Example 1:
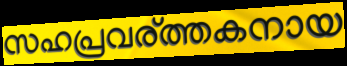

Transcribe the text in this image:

സഹപ്രവര്ത്തകനായ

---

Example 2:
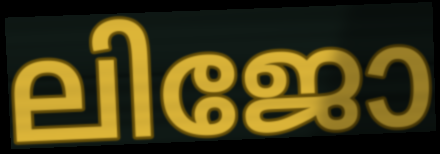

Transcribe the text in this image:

ലിജോ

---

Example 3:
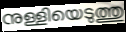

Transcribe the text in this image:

നുള്ളിയെടുത്തു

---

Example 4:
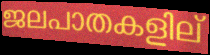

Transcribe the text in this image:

ജലപാതകളില്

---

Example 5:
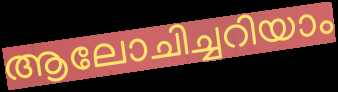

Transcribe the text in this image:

ആലോചിച്ചറിയാം